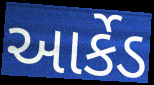
આર્કેડ